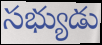
సభ్యుడు